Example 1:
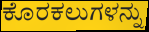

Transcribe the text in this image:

ಕೊರಕಲುಗಳನ್ನು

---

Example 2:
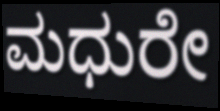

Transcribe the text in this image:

ಮಧುರೇ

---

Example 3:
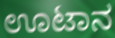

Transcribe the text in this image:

ಊಟಾನ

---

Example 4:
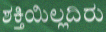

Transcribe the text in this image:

ಶಕ್ತಿಯಿಲ್ಲದಿರು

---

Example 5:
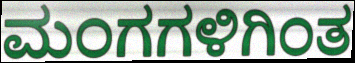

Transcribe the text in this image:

ಮಂಗಗಳಿಗಿಂತ